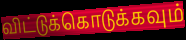
விட்டுக்கொடுக்கவும்